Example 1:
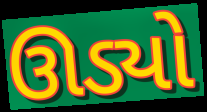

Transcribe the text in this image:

ઊડ્યો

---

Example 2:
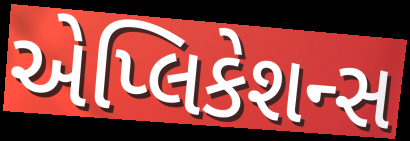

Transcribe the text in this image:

એપ્લિકેશન્સ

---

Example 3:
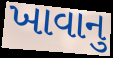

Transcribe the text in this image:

ખાવાનુ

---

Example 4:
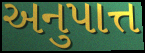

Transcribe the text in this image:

અનુપાત્ત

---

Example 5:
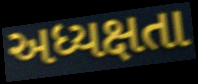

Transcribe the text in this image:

અધ્યક્ષતા